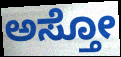
ಅಸ್ತೋ